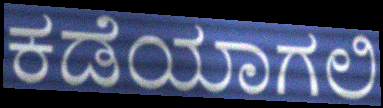
ಕಡೆಯಾಗಲಿ